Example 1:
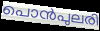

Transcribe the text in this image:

പൊൻപുലരി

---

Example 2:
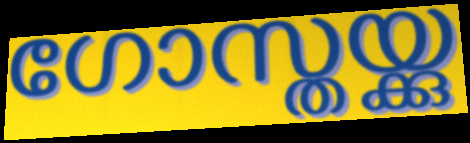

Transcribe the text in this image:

ഗോസ്തയ്ക്കു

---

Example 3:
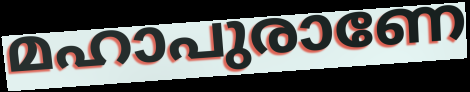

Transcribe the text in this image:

മഹാപുരാണേ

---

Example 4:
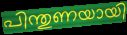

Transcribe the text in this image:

പിന്തുണയായി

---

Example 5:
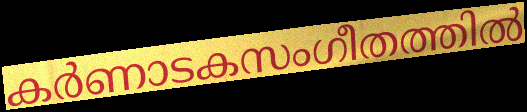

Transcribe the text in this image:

കർണാടകസംഗീതത്തിൽ